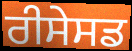
ਰੀਸੇਸਡ